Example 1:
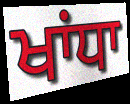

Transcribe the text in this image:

ਖਾਂਧਾ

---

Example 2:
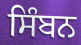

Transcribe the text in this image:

ਸਿੰਬਨ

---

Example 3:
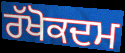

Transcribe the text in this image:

ਰੱਖੋਕਦਮ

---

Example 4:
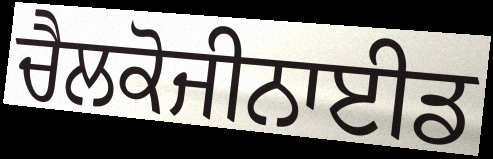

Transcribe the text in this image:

ਚੈਲਕੋਜੀਨਾਈਡ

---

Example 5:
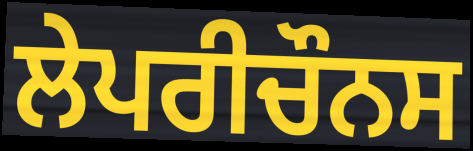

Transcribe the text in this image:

ਲੇਪਰੀਚੌਨਸ